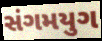
સંગમયુગ